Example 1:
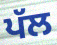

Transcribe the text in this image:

ਪੱਲ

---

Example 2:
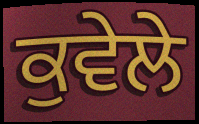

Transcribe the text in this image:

ਕੁਵੇਲੇ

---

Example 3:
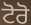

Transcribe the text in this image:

ਟੋਰੋ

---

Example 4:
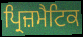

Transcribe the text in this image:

ਪ੍ਰਿਜ਼ਮੈਟਿਕ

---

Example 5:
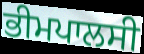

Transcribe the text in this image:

ਭੀਮਪਾਲਸੀ